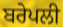
ਬਰੇਪਲੀ